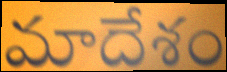
మాదేశం